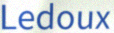
Ledoux